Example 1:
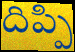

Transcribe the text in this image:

దిప్పి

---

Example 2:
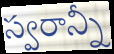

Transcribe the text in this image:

స్వరాన్నీ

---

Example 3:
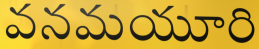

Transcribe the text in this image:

వనమయూరి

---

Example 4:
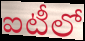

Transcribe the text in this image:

ఐటీలో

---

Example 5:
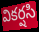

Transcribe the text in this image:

వికర్షసి